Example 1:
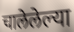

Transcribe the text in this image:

चालेलेल्या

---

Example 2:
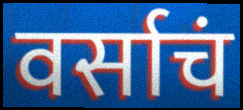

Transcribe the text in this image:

वर्साचं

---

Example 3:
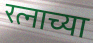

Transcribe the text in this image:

रत्नाच्या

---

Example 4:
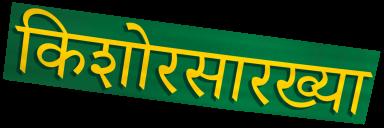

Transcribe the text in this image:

किशोरसारख्या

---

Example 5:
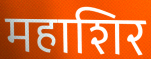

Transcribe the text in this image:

महाशिर